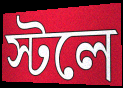
স্টলে